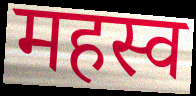
महस्व